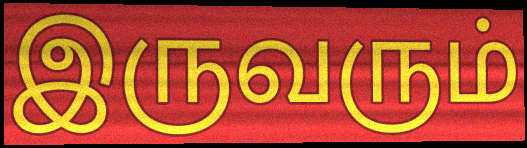
இருவரும்